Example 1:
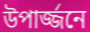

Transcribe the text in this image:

উপার্জ্জনে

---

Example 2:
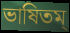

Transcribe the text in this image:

ভাষিতম্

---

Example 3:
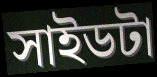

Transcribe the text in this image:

সাইডটা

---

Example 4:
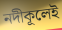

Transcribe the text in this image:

নদীকূলেই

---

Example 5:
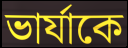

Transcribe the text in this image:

ভার্যাকে